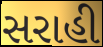
સરાહી